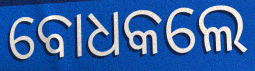
ବୋଧକଲେ